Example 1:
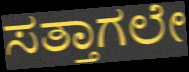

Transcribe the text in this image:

ಸತ್ತಾಗಲೇ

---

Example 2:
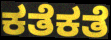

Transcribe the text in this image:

ಕತೆಕತೆ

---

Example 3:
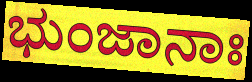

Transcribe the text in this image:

ಭುಂಜಾನಾಃ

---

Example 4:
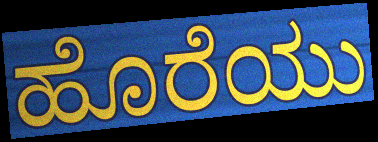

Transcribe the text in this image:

ಹೊರೆಯು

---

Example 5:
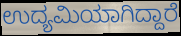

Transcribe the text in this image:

ಉದ್ಯಮಿಯಾಗಿದ್ದಾರೆ